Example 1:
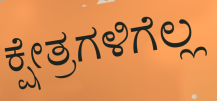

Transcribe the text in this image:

ಕ್ಷೇತ್ರಗಳಿಗೆಲ್ಲ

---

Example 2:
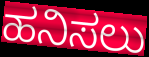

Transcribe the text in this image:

ಹನಿಸಲು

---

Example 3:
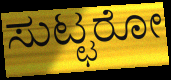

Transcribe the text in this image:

ಸುಟ್ಟರೋ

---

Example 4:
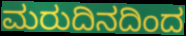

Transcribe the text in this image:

ಮರುದಿನದಿಂದ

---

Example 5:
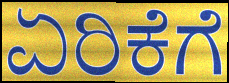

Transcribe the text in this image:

ಏರಿಕೆಗೆ